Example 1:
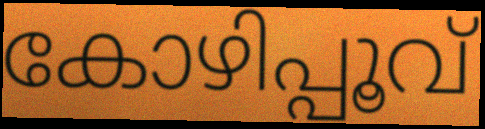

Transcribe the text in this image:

കോഴിപ്പൂവ്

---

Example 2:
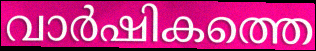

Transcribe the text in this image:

വാർഷികത്തെ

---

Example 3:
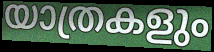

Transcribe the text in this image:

യാത്രകളും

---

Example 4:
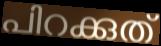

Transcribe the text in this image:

പിറക്കുത്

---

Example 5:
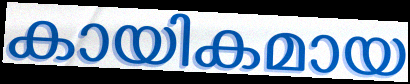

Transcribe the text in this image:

കായികമായ